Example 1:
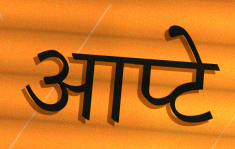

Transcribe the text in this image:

आप्टे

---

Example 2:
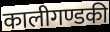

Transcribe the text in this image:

कालीगण्डकी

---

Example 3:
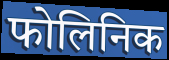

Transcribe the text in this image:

फोलिनिक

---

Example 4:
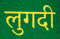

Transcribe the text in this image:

लुगदी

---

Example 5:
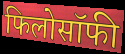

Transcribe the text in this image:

फिलोसॉफी